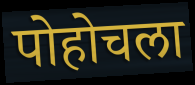
पोहोचला